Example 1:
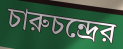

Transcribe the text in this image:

চারুচন্দ্রের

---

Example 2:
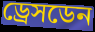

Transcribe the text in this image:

ড্রেসডেন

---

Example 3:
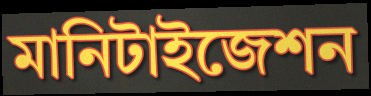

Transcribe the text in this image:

মানিটাইজেশন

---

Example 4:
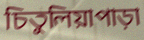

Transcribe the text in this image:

চিতুলিয়াপাড়া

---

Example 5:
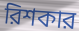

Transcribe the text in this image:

রিশকার